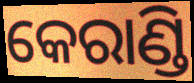
କେରାଣ୍ଡି